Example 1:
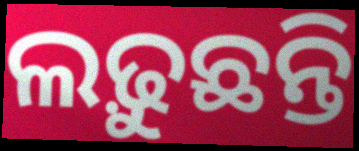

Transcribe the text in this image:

ଲଢ଼ୁଛନ୍ତି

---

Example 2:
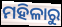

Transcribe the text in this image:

ମହିଳାରୁ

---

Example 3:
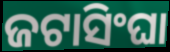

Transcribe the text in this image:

ଜଟାସିଂଘା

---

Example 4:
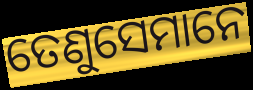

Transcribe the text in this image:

ତେଣୁସେମାନେ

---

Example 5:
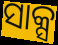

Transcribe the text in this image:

ସାକ୍ସ